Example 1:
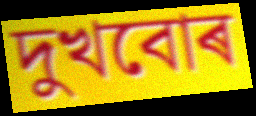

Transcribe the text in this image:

দুখবোৰ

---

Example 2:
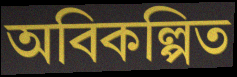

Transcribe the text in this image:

অবিকল্পিত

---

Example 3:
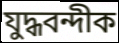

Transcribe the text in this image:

যুদ্ধবন্দীক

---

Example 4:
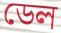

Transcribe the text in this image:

ডেল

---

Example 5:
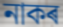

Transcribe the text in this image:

নাকৰ